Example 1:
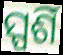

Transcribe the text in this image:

ସ୍ପର୍ଶି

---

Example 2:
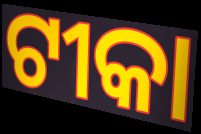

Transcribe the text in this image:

ଟୀକା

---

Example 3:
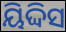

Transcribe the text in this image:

ୟିଦ୍ଦିସ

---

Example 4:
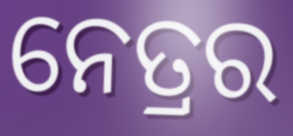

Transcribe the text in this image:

ନେତ୍ରର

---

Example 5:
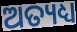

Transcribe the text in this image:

ଅତ୍ୟଧ୍ୟ